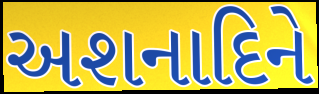
અશનાદિને